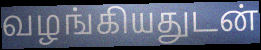
வழங்கியதுடன்